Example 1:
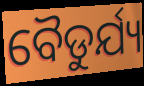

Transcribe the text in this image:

ବୈଡୁର୍ଯ୍ୟ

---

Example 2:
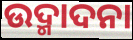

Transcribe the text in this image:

ଉଦ୍ମାଦନା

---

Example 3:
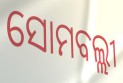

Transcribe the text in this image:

ସୋମବଲ୍ଲୀ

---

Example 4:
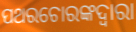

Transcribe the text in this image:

ପଥରଚୋରଙ୍କଦ୍ୱାରା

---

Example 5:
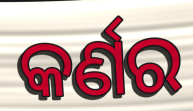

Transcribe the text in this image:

କର୍ଣର